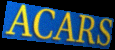
ACARS